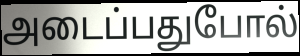
அடைப்பதுபோல்